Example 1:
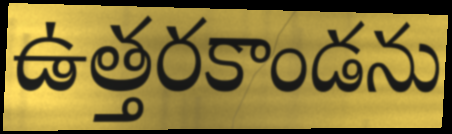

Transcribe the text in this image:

ఉత్తరకాండను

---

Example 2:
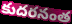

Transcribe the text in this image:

కుదరనంత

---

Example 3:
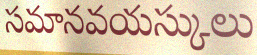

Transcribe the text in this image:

సమానవయస్కులు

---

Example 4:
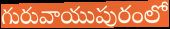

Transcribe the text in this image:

గురువాయుపురంలో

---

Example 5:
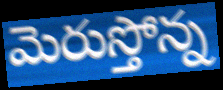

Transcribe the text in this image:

మెరుస్తోన్న